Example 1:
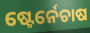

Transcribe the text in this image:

ଷ୍ଟେର୍ନେଚାଷ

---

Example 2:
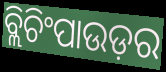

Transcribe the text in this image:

ବ୍ଲିଚିଂପାଉଡ଼ର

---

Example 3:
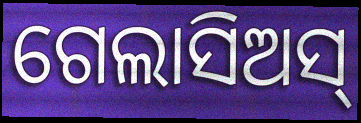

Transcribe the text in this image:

ଗେଲାସିଅସ୍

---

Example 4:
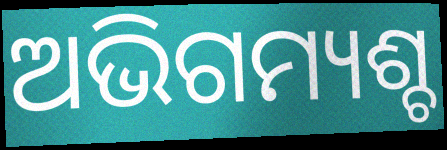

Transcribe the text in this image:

ଅଭିଗମ୍ୟଶ୍ଚ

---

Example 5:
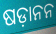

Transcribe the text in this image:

ଷଡ଼ାନନ